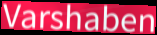
Varshaben